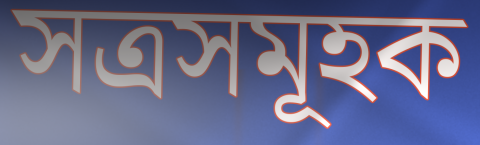
সত্ৰসমূহক